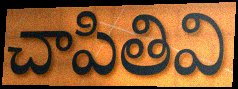
చాపితివి